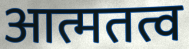
आत्मतत्व